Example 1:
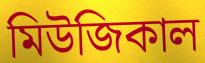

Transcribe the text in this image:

মিউজিকাল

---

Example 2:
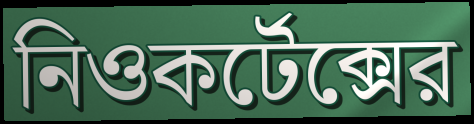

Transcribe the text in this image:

নিওকর্টেক্সের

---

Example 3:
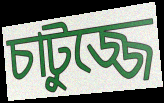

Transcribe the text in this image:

চাটুজ্জে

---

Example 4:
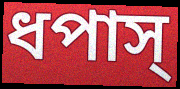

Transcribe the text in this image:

ধপাস্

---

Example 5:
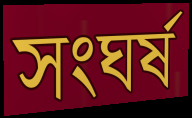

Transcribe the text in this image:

সংঘর্ষ